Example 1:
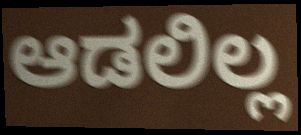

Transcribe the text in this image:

ಆಡಲಿಲ್ಲ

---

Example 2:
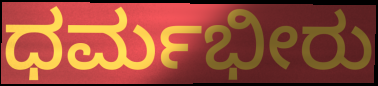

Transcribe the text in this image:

ಧರ್ಮಭೀರು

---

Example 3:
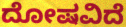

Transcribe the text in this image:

ದೋಷವಿದೆ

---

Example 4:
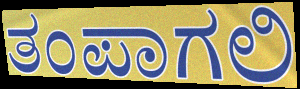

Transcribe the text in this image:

ತಂಪಾಗಲಿ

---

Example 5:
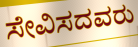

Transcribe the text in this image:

ಸೇವಿಸದವರು